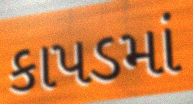
કાપડમાં